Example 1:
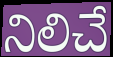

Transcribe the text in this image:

నిలిచే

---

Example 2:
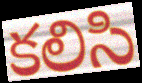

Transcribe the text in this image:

కలిసి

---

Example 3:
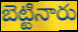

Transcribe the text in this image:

బెట్టినారు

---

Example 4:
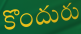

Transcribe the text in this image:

కొందురు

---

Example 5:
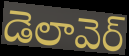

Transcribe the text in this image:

డెలావెర్